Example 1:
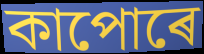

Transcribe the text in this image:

কাপোৰে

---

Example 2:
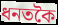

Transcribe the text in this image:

ধনতকৈ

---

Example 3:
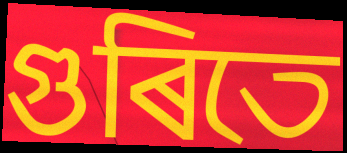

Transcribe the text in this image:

গুৰিতে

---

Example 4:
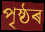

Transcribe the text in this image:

পৃষ্ঠৰ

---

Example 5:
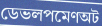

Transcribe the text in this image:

ডেভলপমেণঅট